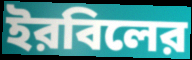
ইরবিলের